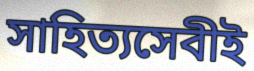
সাহিত্যসেবীই